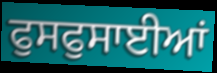
ਫੁਸਫੁਸਾਈਆਂ